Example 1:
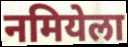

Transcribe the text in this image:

नमियेला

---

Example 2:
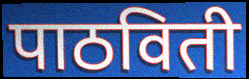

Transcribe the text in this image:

पाठविती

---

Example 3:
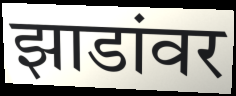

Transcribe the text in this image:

झाडांवर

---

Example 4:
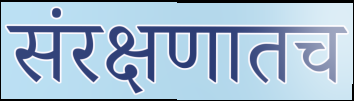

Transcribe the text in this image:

संरक्षणातच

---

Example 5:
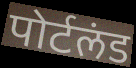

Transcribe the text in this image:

पोर्टलंड